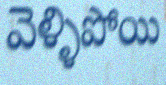
వెళ్ళిపోయి